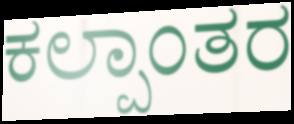
ಕಲ್ಪಾಂತರ